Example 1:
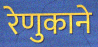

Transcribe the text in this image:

रेणुकाने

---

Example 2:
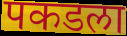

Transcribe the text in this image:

पकडला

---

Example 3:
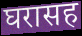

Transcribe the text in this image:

घरासह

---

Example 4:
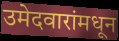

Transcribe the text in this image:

उमेदवारांमधून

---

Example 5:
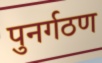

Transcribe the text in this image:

पुनर्गठण